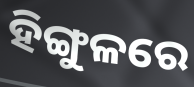
ହିଙ୍ଗୁଳରେ